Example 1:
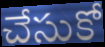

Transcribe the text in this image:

చేసుకో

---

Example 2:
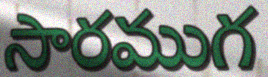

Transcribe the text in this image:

సారముగ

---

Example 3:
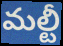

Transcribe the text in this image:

మల్టీ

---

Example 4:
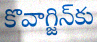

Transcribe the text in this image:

కొవాగ్జిన్‌కు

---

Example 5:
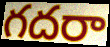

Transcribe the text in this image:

గదరా